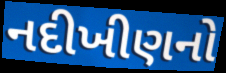
નદીખીણનો